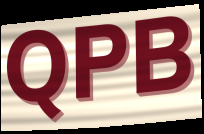
QPB